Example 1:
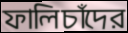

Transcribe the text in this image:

ফালিচাঁদের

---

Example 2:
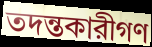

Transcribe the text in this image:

তদন্তকারীগণ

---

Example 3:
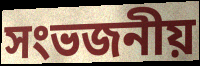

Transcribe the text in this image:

সংভজনীয়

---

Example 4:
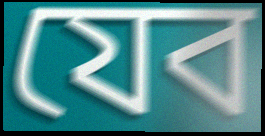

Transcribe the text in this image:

যেব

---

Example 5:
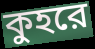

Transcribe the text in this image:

কুহরে